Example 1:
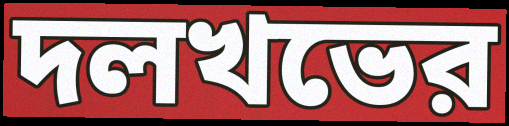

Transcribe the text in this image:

দলখভের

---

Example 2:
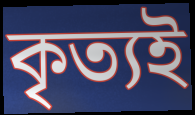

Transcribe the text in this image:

কৃত্যই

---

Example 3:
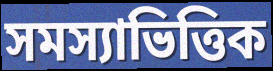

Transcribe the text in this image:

সমস্যাভিত্তিক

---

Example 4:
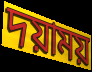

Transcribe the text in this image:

দয়াময়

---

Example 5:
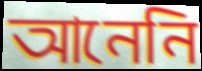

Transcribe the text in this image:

আনেনি